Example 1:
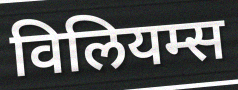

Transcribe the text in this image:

विलियम्स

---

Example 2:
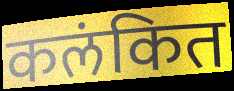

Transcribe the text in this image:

कलंकित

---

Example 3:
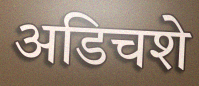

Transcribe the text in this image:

अडिचशे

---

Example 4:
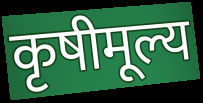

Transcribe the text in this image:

कृषीमूल्य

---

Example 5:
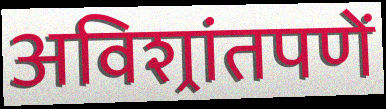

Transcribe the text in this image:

अविश्रांतपणें